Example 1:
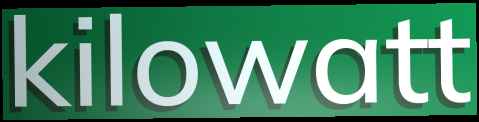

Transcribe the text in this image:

kilowatt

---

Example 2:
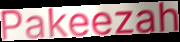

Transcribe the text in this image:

Pakeezah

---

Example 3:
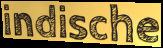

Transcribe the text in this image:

indische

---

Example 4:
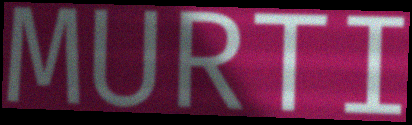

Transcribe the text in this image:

MURTI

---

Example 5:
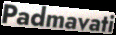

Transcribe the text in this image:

Padmavati